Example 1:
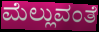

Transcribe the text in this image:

ಮೆಲ್ಲುವಂತೆ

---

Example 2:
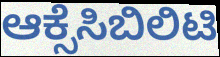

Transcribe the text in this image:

ಆಕ್ಸೆಸಿಬಿಲಿಟಿ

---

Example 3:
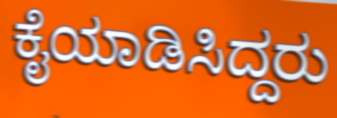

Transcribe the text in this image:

ಕೈಯಾಡಿಸಿದ್ದರು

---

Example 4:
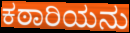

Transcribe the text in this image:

ಕಠಾರಿಯನು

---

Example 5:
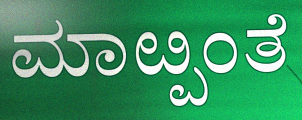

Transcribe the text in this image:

ಮಾೞ್ಪಂತೆ